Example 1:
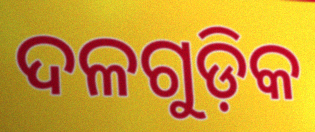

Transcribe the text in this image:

ଦଳଗୁଡ଼ିକ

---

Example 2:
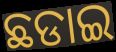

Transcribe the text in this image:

ଛଡାଇ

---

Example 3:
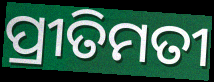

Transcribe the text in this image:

ପ୍ରୀତିମତୀ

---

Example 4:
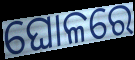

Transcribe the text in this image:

ଘୋଳରେ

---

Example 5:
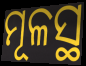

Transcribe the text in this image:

ମୂଳସ୍ଥ